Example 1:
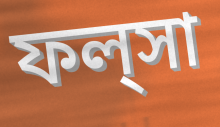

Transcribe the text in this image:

ফল্‌সা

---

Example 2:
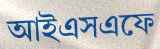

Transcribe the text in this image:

আইএসএফে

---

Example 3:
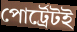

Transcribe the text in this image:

পোর্ট্রেটই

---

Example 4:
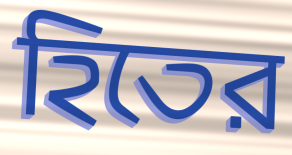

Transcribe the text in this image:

হিতের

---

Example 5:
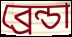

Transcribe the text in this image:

ব্রেন্ডা